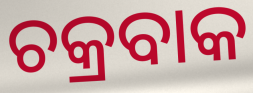
ଚକ୍ରବାକ